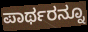
ಪಾರ್ಥರನ್ನೂ